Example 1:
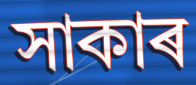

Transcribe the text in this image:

সাকাৰ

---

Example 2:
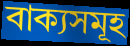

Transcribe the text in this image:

বাক্যসমূহ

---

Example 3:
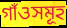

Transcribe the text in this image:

গাঁওসমূহ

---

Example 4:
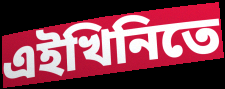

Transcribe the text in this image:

এইখিনিতে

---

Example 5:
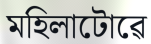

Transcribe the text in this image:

মহিলাটোৱে